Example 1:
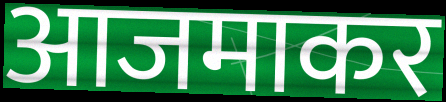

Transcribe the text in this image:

आजमाकर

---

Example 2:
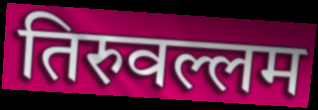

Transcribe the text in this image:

तिरुवल्लम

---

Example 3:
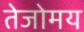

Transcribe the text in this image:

तेजोमय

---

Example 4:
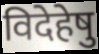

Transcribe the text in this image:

विदेहेषु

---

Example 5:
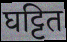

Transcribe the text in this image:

घट्टित